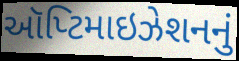
ઑપ્ટિમાઇઝેશનનું